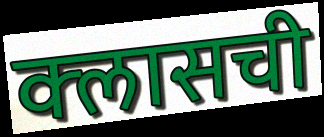
क्‍लासची